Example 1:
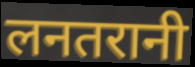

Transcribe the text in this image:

लनतरानी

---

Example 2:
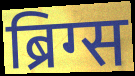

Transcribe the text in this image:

ब्रिग्स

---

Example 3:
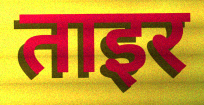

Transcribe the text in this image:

ताइर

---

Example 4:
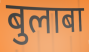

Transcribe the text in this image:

बुलाबा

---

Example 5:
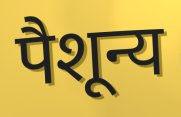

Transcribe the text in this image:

पैशून्य